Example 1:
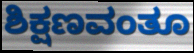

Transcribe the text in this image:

ಶಿಕ್ಷಣವಂತೂ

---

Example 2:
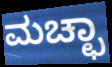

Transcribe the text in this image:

ಮಚ್ಛಾ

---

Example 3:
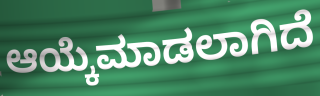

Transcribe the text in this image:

ಆಯ್ಕೆಮಾಡಲಾಗಿದೆ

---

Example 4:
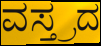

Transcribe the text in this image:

ವಸ್ತ್ರದ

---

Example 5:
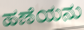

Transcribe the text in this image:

ಹಣೆಯನು